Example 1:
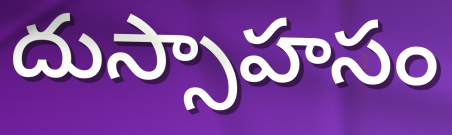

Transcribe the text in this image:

దుస్సాహసం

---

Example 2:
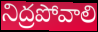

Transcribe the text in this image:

నిద్రపోవాలి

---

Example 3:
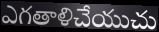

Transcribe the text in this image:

ఎగతాళిచేయుచు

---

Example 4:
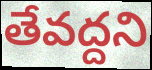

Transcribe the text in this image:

తేవద్దని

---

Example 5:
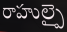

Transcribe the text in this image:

రాహుల్పై